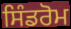
ਸਿੰਡਰੋਮ